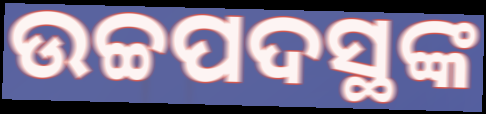
ଉଚ୍ଚପଦସ୍ଥଙ୍କ